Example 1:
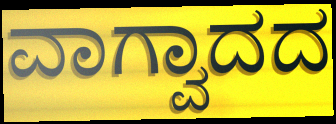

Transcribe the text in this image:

ವಾಗ್ವಾದದ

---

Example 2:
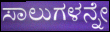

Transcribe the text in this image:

ಸಾಲುಗಳನ್ನೇ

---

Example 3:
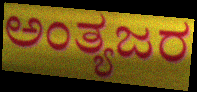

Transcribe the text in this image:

ಅಂತ್ಯಜರ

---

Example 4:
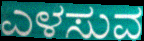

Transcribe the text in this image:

ಎಳಸುವ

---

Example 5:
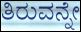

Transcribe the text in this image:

ತಿರುವನ್ನೇ